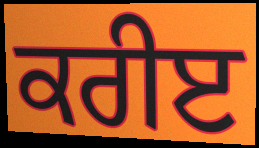
ਕਰੀੲ